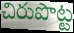
చిరుపొట్ట